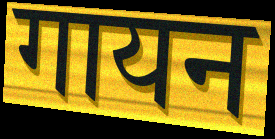
गायन